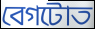
বেগটোত